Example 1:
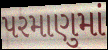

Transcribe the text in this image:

પરમાણુમાં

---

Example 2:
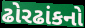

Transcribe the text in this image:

ઢોરઢાંકનો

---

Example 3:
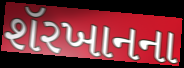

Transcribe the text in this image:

શૅરખાનના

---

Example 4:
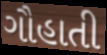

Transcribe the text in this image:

ગૌહાતી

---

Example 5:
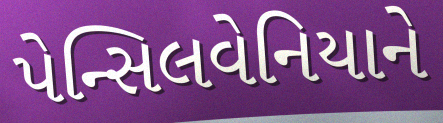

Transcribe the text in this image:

પેન્સિલવેનિયાને